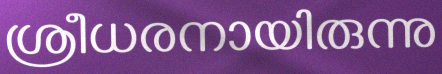
ശ്രീധരനായിരുന്നു